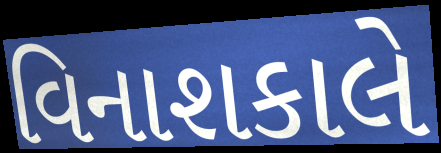
વિનાશકાલે